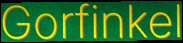
Gorfinkel